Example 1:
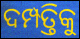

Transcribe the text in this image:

ଦମ୍ପତ୍ତିକୁ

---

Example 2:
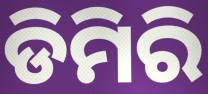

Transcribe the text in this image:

ଡିମିରି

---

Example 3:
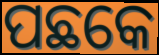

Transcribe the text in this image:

ପଛକେ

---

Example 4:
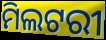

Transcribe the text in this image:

ମିଲଟରୀ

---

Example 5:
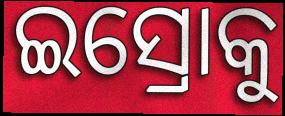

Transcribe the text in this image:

ଇସ୍ରୋକୁ